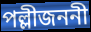
পল্লীজননী